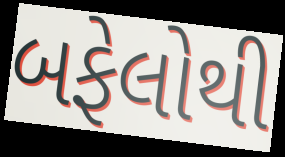
બફેલોથી